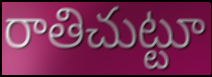
రాతిచుట్టూ